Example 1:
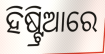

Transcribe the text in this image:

ହିଷ୍ଟ୍ରିଆରେ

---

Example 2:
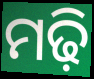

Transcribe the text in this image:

ମଢ଼ି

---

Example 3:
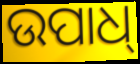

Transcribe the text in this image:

ଉପାଧ୍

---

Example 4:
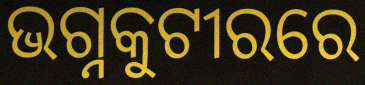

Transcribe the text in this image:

ଭଗ୍ନକୁଟୀରରେ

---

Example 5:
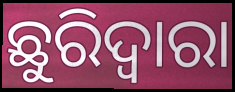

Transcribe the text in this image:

ଛୁରିଦ୍ୱାରା